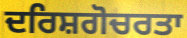
ਦਰਿਸ਼ਗੋਚਰਤਾ